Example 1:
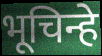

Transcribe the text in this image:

भूचिन्हे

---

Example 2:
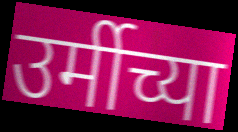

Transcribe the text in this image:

उर्मीच्या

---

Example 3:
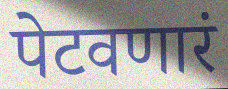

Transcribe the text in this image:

पेटवणारं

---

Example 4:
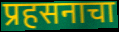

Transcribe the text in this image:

प्रहसनाचा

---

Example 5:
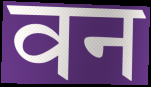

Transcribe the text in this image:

वन